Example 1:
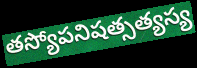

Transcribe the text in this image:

తస్యోపనిషత్సత్యస్య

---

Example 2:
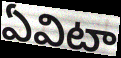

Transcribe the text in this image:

ఏవిటా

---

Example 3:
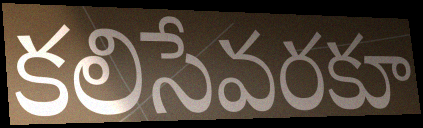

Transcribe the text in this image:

కలిసేవరకూ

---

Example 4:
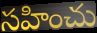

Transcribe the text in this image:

సహించు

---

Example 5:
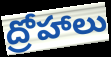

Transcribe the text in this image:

ద్రోహాలు